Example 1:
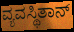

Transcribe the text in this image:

ವ್ಯವಸ್ಥಿತಾನ್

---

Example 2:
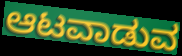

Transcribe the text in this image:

ಆಟವಾಡುವ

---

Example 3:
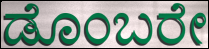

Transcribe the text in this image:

ಡೊಂಬರೇ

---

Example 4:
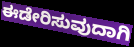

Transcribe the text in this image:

ಈಡೇರಿಸುವುದಾಗಿ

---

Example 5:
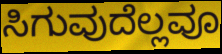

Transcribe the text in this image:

ಸಿಗುವುದೆಲ್ಲವೂ